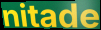
nitade